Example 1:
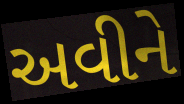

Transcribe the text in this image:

અવીને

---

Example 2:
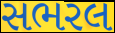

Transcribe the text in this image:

સભરલ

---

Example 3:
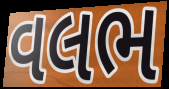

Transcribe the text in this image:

વલભ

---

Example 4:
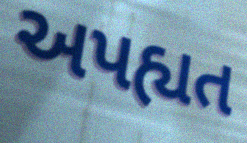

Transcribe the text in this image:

અપહ્યત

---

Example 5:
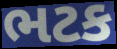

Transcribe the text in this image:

ભટક